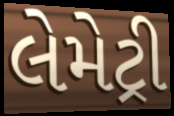
લેમેટ્રી